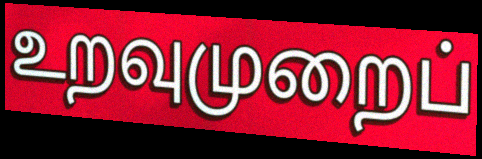
உறவுமுறைப்